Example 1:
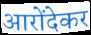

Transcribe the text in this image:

आरोंदेकर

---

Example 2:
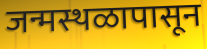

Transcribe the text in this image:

जन्मस्थळापासून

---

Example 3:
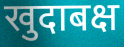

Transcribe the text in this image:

खुदाबक्ष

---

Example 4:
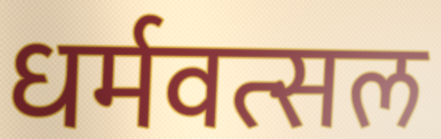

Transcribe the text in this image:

धर्मवत्सल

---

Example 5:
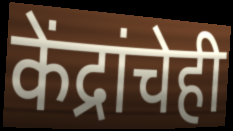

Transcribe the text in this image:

केंद्रांचेही